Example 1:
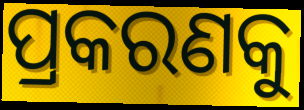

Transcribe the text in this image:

ପ୍ରକରଣକୁ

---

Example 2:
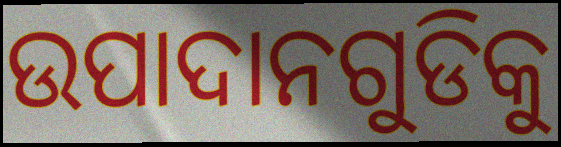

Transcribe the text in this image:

ଉପାଦାନଗୁଡିକୁ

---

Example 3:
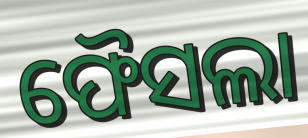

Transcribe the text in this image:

ଫୈସଲା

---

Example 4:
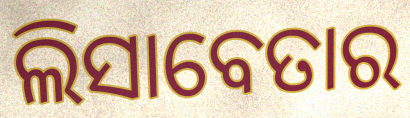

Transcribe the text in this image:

ଲିସାବେତାର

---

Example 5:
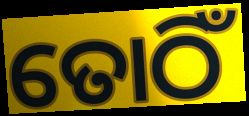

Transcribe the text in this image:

ତୋଠିଁ